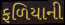
ફળિયાની